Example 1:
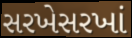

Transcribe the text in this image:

સરખેસરખાં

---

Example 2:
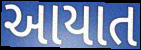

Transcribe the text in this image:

આયાત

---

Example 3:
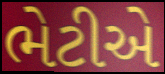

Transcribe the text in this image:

ભેટીએ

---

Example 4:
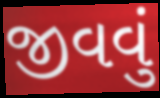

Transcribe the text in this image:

જીવવું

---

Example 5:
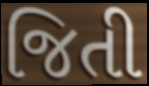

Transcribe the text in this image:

જિતી